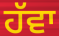
ਹੱਵਾ